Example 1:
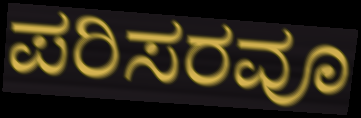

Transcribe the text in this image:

ಪರಿಸರವೂ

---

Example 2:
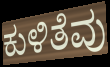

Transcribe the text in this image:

ಕುಳಿತೆವು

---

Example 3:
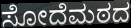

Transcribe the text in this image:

ಸೋದೆಮಠದ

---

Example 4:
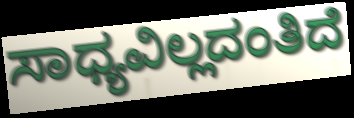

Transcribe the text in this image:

ಸಾಧ್ಯವಿಲ್ಲದಂತಿದೆ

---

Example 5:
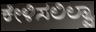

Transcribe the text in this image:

ಕೇಳಿಸಲಿಲ್ವಾ